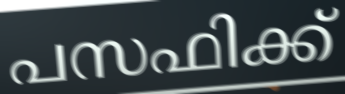
പസഫിക്ക്